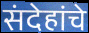
संदेहांचे